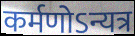
कर्मणोऽन्यत्र